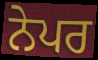
ਨੇਪਰ